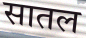
सातल